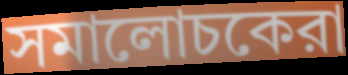
সমালোচকেরা